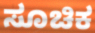
ಸೂಚಿಕ